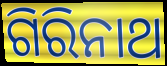
ଗିରିନାଥ